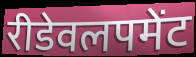
रीडेवलपमेंट